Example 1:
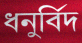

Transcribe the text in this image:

ধনুৰ্বিদ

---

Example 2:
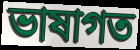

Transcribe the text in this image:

ভাষাগত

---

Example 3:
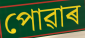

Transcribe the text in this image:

পোৱাৰ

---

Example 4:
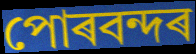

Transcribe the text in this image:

পোৰবন্দৰ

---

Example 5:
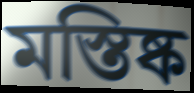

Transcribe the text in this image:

মস্তিষ্ক